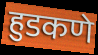
हुडकणे